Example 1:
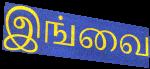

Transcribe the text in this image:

இங்வை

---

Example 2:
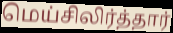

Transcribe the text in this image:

மெய்சிலிர்த்தார்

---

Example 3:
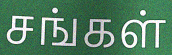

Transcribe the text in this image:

சங்கள்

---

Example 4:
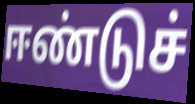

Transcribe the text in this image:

ஈண்டுச்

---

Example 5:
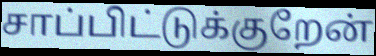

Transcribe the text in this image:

சாப்பிட்டுக்குறேன்